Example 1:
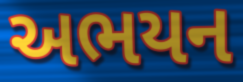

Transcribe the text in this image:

અભયન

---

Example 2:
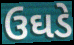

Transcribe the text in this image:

ઉઘડે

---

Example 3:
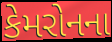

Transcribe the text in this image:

કેમરોનના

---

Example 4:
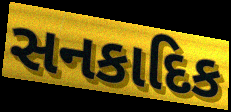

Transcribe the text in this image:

સનકાદિક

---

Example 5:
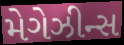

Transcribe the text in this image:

મેગેઝીન્સ